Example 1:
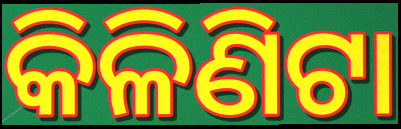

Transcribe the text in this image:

କିଳିଣିଟା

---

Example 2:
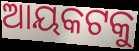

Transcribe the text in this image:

ଆୟକଟକୁ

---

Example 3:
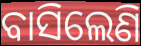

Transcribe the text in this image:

ବାସିଲେଣି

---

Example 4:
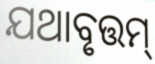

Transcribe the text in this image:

ଯଥାବୃତ୍ତମ୍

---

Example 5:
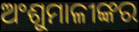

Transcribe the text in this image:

ଅଂଶୁମାଳୀଙ୍କର